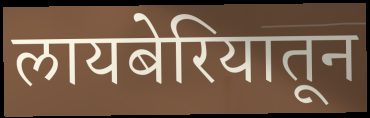
लायबेरियातून